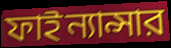
ফাইন্যান্সার